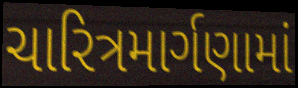
ચારિત્રમાર્ગણામાં